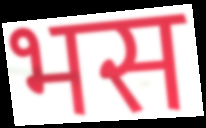
भस